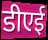
डीएई